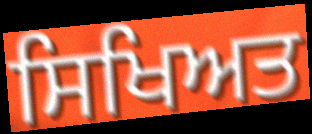
ਸਿਖਿਅਤ